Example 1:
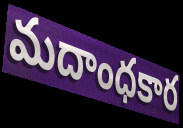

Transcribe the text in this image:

మదాంధకార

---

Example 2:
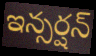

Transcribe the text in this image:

ఇన్సర్షన్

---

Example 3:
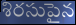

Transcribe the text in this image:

శిరసుపైన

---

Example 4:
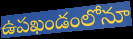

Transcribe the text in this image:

ఉపఖండంలోనూ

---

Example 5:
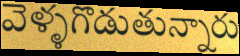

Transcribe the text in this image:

వెళ్ళగొడుతున్నారు